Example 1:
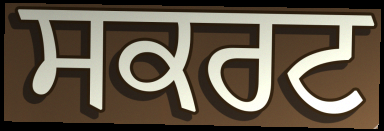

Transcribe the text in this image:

ਸਕਰਟ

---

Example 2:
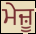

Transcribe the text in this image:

ਮੇਜ਼ੂ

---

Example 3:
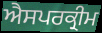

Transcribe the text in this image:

ਐਸਪਰਕ੍ਰੀਮ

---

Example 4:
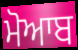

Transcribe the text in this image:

ਮੋਆਬ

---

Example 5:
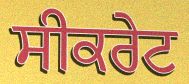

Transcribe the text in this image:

ਸੀਕਰੇਟ